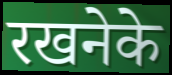
रखनेके